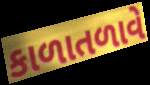
કાળાતળાવે